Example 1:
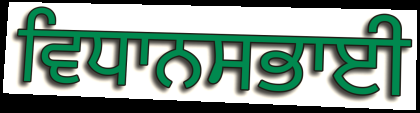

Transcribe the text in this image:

ਵਿਧਾਨਸਭਾਈ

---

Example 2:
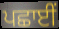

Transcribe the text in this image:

ਪਛਾਈਂ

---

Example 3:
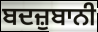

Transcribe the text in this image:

ਬਦਜ਼ੁਬਾਨੀ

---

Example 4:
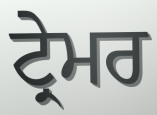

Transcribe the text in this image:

ਟ੍ਰੇਮਰ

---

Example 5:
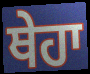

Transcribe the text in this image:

ਥੇਹਾ